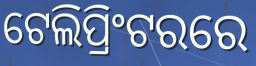
ଟେଲିପ୍ରିଂଟରରେ